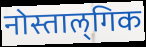
नोस्ताल्गिक